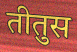
तीतुस